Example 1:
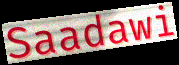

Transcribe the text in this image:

Saadawi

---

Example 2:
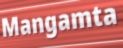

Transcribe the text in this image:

Mangamta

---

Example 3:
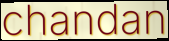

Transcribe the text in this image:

chandan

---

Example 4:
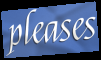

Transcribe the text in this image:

pleases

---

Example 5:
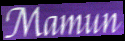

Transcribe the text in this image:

Mamun